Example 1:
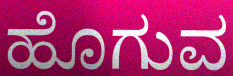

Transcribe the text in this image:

ಹೊಗುವ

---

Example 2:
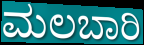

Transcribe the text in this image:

ಮಲಬಾರಿ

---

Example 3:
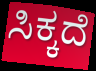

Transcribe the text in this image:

ಸಿಕ್ಕದೆ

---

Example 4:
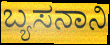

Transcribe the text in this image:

ಬ್ಯಸನಾನಿ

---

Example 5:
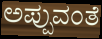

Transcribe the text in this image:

ಅಪ್ಪುವಂತೆ